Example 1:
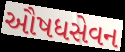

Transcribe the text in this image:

ઔષધસેવન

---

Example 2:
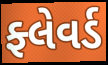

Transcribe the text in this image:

ફ્લેવર્ડ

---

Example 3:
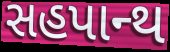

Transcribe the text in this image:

સહપાન્થ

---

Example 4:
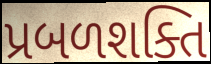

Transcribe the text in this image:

પ્રબળશક્તિ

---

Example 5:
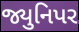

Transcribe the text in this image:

જ્યુનિપર